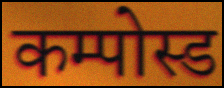
कम्पोस्ड